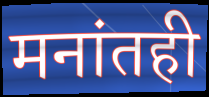
मनांतही